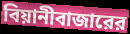
বিয়ানীবাজারের